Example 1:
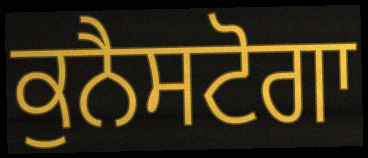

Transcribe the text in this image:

ਕੁਨੈਸਟੋਗਾ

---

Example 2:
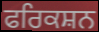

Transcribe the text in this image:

ਫਰਿਕਸ਼ਨ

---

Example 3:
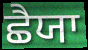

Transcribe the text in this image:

ਛੈਯਾ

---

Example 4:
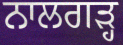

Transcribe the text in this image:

ਨਾਲਗੜ੍ਹ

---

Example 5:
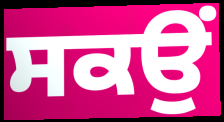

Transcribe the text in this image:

ਸਕਉਂ